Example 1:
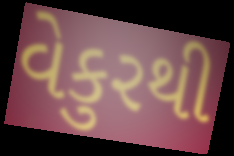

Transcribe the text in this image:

વેકુરથી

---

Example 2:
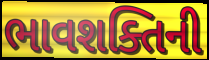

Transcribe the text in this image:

ભાવશક્તિની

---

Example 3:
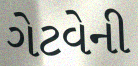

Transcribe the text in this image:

ગેટવેની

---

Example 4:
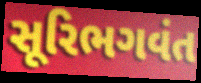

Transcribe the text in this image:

સૂરિભગવંત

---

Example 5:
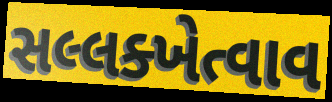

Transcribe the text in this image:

સલ્લક્ખેત્વાવ